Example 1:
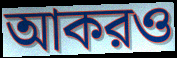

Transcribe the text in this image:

আকরও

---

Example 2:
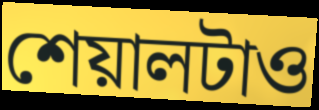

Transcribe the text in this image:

শেয়ালটাও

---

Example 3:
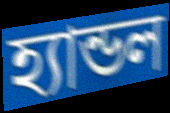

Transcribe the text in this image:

হ্যান্ডল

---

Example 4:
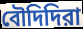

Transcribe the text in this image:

বৌদিদিরা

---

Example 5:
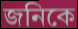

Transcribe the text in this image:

জনিকে